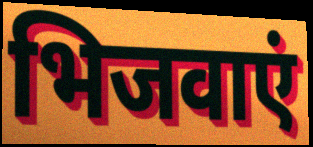
भिजवाएं